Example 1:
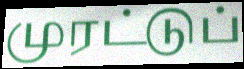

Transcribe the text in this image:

முரட்டுப்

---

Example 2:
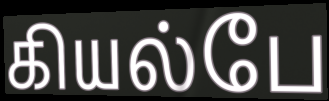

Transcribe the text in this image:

கியல்பே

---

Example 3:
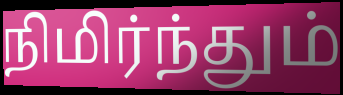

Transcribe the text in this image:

நிமிர்ந்தும்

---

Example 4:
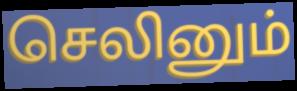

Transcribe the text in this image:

செலினும்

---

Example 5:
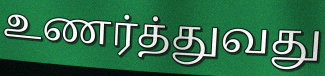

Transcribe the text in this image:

உணர்த்துவது